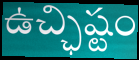
ఉచ్ఛిష్టం